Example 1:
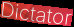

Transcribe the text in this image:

Dictator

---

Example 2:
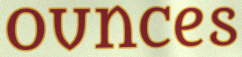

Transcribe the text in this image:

ounces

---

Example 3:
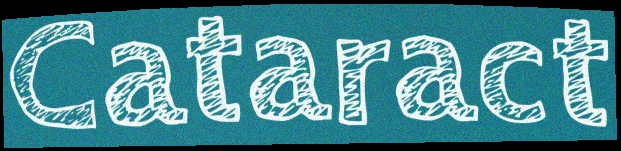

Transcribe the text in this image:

Cataract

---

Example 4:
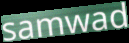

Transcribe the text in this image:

samwad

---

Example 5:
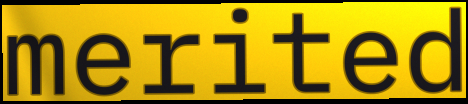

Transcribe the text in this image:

merited